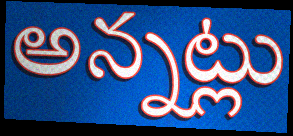
అన్నట్లు